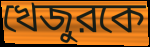
খেজুরকে